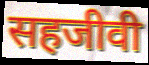
सहजीवी